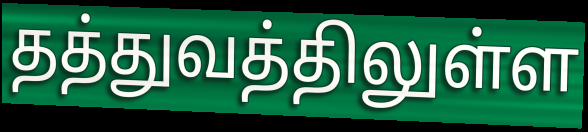
தத்துவத்திலுள்ள